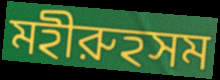
মহীরুহসম